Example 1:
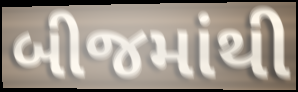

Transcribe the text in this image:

બીજમાંથી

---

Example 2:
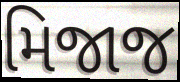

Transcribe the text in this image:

મિજાજ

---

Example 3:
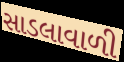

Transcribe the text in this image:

સાડલાવાળી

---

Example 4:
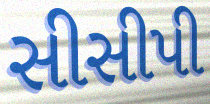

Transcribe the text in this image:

સીસીપી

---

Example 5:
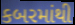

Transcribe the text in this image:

કબરમાંથી